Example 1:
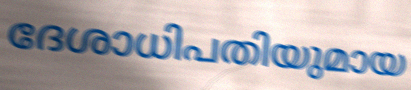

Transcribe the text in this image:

ദേശാധിപതിയുമായ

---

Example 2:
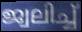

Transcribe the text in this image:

ജ്വലിച്ച്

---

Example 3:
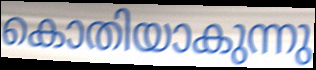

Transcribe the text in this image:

കൊതിയാകുന്നു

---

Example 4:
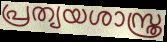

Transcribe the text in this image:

പ്രത്യയശാസ്ത്ര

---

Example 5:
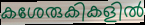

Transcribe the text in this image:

കശേരുകികളിൽ